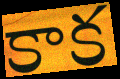
కాక